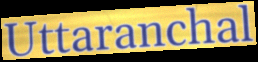
Uttaranchal